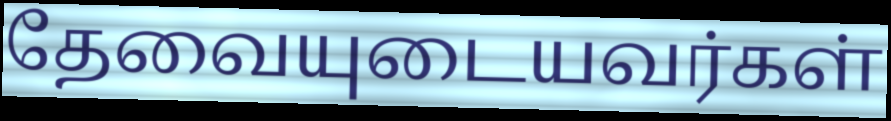
தேவையுடையவர்கள்